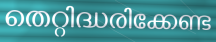
തെറ്റിദ്ധരിക്കേണ്ട